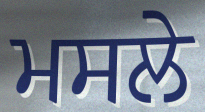
ਮਸਲੇ